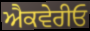
ਐਕਵੇਰੀਓ